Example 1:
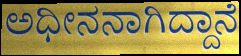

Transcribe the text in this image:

ಅಧೀನನಾಗಿದ್ದಾನೆ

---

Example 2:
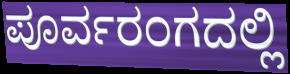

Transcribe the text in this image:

ಪೂರ್ವರಂಗದಲ್ಲಿ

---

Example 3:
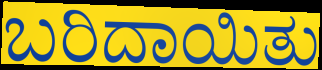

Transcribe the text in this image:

ಬರಿದಾಯಿತು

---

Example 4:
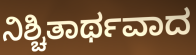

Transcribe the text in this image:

ನಿಶ್ಚಿತಾರ್ಥವಾದ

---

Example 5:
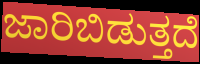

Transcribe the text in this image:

ಜಾರಿಬಿಡುತ್ತದೆ